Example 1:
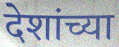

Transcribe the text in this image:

देशांच्या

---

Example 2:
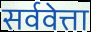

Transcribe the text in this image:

सर्ववेत्ता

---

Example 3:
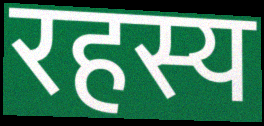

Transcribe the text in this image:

रहस्य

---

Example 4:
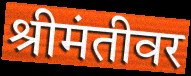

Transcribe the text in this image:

श्रीमंतीवर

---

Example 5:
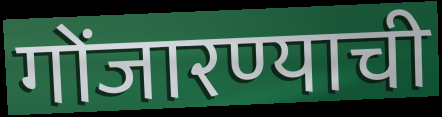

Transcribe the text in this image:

गोंजारण्याची